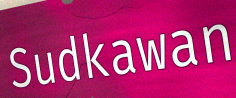
Sudkawan